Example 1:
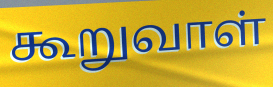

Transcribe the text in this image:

கூறுவாள்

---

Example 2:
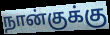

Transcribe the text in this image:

நான்குக்கு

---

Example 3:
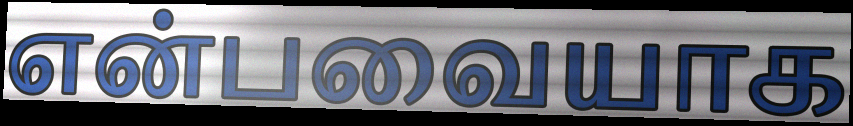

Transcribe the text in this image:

என்பவையாக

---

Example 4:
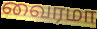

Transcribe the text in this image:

வைரமா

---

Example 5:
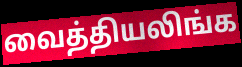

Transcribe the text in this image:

வைத்தியலிங்க